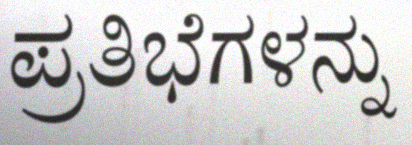
ಪ್ರತಿಭೆಗಳನ್ನು